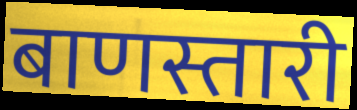
बाणस्तारी